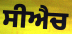
ਸੀਐਚ